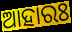
ଆହାରଃ